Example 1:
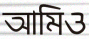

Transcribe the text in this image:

আমিও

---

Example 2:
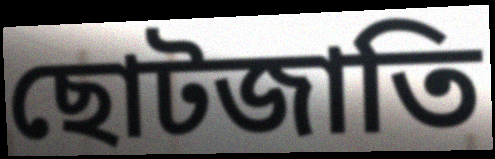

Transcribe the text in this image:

ছোটজাতি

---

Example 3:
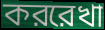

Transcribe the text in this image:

কররেখা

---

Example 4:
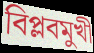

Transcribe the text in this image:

বিপ্লবমুখী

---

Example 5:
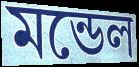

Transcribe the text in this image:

মন্ডেল